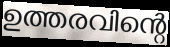
ഉത്തരവിന്റെ